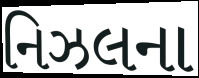
નિઝલના